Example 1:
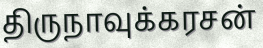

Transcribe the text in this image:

திருநாவுக்கரசன்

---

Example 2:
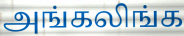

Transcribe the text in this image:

அங்கலிங்க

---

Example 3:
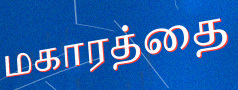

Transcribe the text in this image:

மகாரத்தை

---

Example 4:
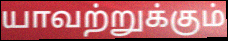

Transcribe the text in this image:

யாவற்றுக்கும்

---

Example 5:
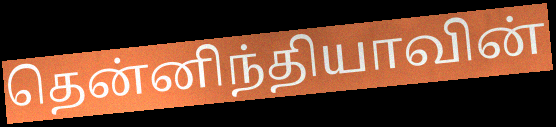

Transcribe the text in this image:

தென்னிந்தியாவின்